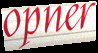
opner